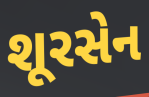
શૂરસેન